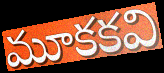
మూకకవి